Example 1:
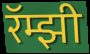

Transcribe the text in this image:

रॅम्झी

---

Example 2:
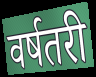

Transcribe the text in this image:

वर्षतरी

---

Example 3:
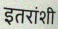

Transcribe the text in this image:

इतरांशी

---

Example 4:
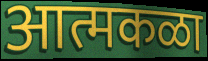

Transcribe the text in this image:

आत्मकळा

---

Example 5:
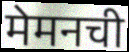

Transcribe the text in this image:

मेमनची